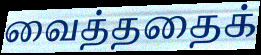
வைத்ததைக்